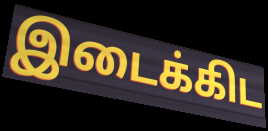
இடைக்கிட